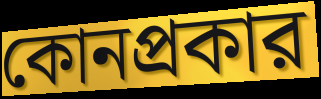
কোনপ্রকার